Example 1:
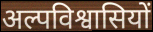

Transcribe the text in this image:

अल्पविश्वासियों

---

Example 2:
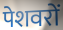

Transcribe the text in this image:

पेशवरों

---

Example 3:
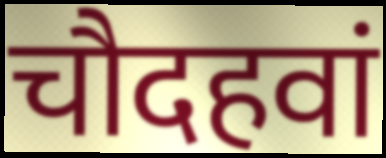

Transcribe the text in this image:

चौदहवां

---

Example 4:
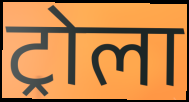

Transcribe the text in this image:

ट्रोला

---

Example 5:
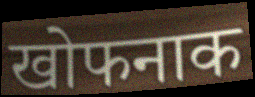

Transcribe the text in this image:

खोफनाक